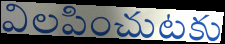
విలపించుటకు